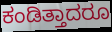
ಕಂಡಿತ್ತಾದರೂ